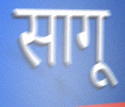
सागू